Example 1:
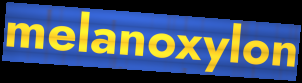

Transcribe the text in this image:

melanoxylon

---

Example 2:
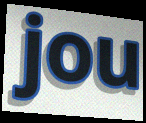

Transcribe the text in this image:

jou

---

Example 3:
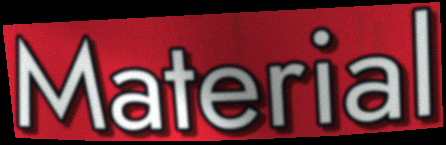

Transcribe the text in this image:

Material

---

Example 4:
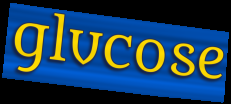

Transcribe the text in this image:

glucose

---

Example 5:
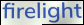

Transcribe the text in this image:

firelight